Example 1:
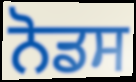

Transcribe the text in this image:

ਨੋਡਸ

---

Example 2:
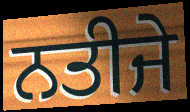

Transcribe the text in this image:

ਨਤੀਜੇ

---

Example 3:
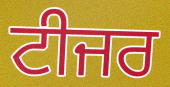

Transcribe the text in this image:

ਟੀਜਰ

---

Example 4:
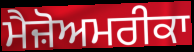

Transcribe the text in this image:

ਮੈਜ਼ੋਅਮਰੀਕਾ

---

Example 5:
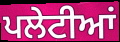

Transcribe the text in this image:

ਪਲੇਟੀਆਂ